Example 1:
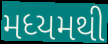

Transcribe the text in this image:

મધ્યમથી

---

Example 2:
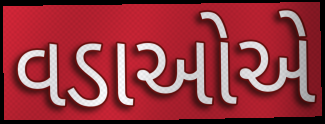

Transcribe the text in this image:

વડાઓએ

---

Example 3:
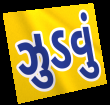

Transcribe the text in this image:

ઝુડવું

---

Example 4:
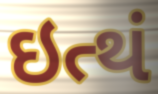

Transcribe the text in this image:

ઇત્થં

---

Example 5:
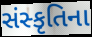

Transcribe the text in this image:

સંસ્કૃતિના